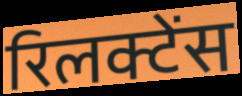
रिलक्टेंस